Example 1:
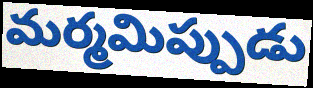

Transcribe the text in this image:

మర్మమిప్పుడు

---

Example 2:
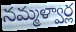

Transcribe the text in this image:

నమ్మళ్వార్ల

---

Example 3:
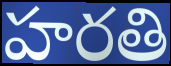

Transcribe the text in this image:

హరతి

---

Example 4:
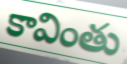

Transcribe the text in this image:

కావింతు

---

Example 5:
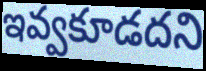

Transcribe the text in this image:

ఇవ్వకూడదని